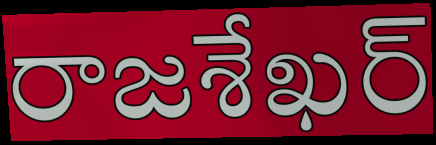
రాజశేఖర్